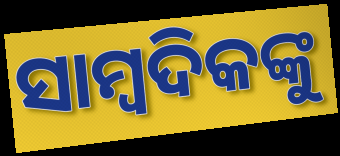
ସାମ୍ବଦିକଙ୍କୁ